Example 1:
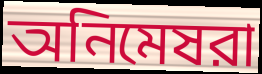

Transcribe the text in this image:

অনিমেষরা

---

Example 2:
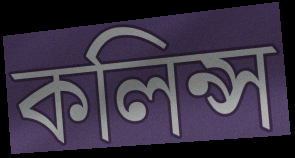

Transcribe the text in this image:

কলিন্স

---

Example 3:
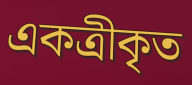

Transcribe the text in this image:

একত্রীকৃত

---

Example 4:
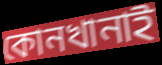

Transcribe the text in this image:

কোনখানাই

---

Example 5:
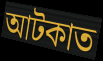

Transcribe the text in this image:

আটকাত